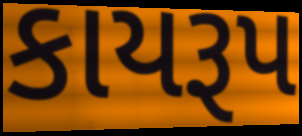
કાયરૂપ